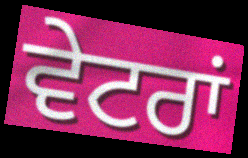
ਵੇਟਰਾਂ